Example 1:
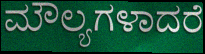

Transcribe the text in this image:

ಮೌಲ್ಯಗಳಾದರೆ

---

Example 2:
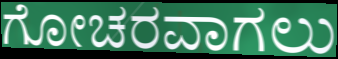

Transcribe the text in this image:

ಗೋಚರವಾಗಲು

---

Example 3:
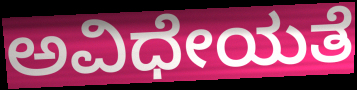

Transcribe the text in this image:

ಅವಿಧೇಯತೆ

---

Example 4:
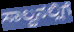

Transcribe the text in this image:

ಸಾಲ್ವನಲ್ಲಿಗೆ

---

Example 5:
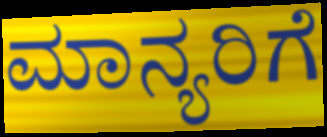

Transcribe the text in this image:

ಮಾನ್ಯರಿಗೆ